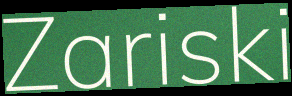
Zariski